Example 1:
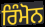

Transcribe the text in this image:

ਰਿੰਮੋਨ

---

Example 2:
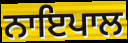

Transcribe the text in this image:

ਨਾਇਪਾਲ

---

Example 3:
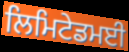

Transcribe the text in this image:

ਲਿਮਿਟੇਡਮਈ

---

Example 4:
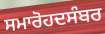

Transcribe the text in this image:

ਸਮਾਰੋਹਦਸੰਬਰ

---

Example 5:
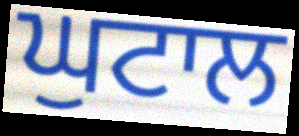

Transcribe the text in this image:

ਘੁਟਾਲ